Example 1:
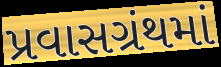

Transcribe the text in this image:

પ્રવાસગ્રંથમાં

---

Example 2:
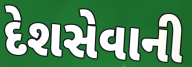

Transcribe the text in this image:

દેશસેવાની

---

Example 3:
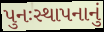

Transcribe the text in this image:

પુનઃસ્થાપનાનું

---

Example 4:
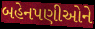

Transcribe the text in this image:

બહેનપણીઓને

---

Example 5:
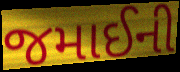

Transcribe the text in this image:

જમાઈની